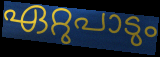
ഏറ്റുപാടും